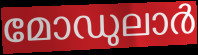
മോഡുലാർ